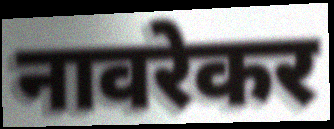
नावरेकर